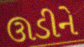
ઊડીને